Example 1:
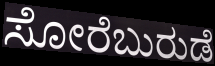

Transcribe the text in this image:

ಸೋರೆಬುರುಡೆ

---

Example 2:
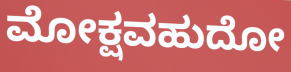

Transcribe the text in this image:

ಮೋಕ್ಷವಹುದೋ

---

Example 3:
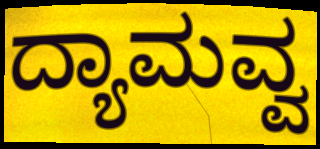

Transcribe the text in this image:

ದ್ಯಾಮವ್ವ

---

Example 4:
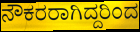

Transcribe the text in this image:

ನೌಕರರಾಗಿದ್ದರಿಂದ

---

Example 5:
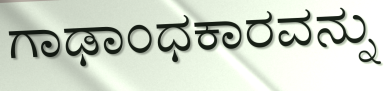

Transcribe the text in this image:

ಗಾಢಾಂಧಕಾರವನ್ನು